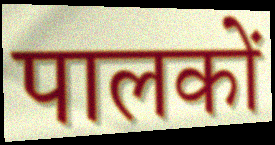
पालकों